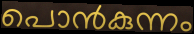
പൊൻകുന്നം